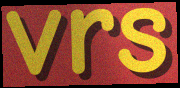
vrs